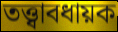
তত্ত্বাবধায়ক